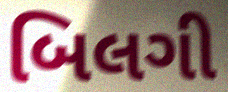
બિલગી